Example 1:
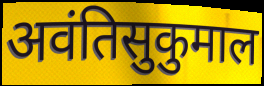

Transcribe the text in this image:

अवंतिसुकुमाल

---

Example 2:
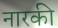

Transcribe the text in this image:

नारकी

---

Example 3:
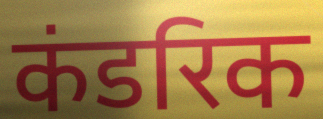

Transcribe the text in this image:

कंडरिक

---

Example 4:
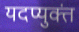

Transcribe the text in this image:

यदप्युक्तं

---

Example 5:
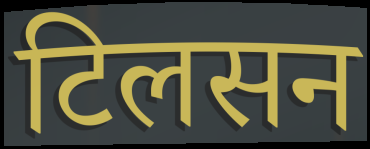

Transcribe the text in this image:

टिलसन